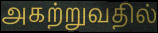
அகற்றுவதில்